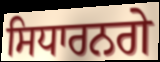
ਸਿਧਾਰਨਗੇ